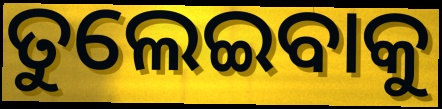
ତୁଲେଇବାକୁ